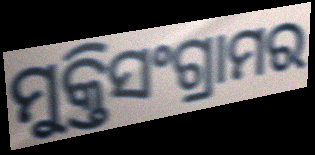
ମୁକ୍ତିସଂଗ୍ରାମର